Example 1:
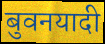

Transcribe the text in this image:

बुवनयादी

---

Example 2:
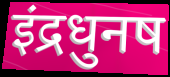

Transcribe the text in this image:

इंद्रधुनष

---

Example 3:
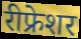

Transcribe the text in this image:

रीफ्रेशर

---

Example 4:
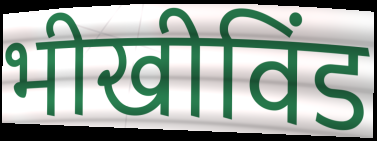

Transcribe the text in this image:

भीखीविंड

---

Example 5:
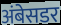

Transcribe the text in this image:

अंबेसडर